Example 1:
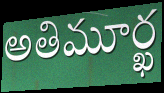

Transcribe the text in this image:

అతిమూర్ఖ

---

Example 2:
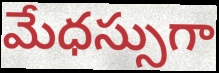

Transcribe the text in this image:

మేధస్సుగా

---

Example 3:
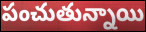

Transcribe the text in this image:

పంచుతున్నాయి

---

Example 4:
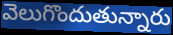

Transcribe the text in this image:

వెలుగొందుతున్నారు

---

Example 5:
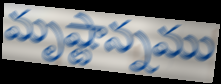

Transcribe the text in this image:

మృష్టాన్నము